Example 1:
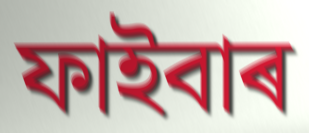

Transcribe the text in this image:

ফাইবাৰ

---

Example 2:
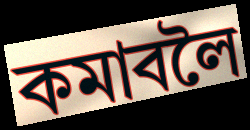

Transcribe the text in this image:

কমাবলৈ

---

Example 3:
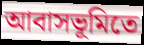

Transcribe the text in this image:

আবাসভূমিতে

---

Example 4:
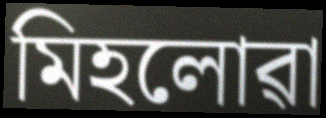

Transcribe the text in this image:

মিহলোৱা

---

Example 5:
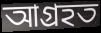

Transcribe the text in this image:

আগ্ৰহত